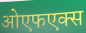
ओएफएक्स